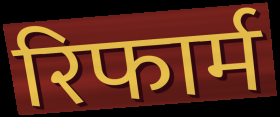
रिफार्म